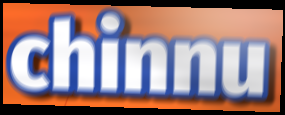
chinnu